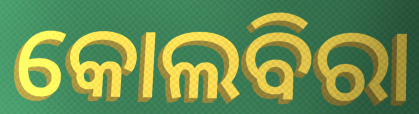
କୋଲବିରା